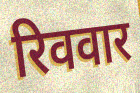
रिववार